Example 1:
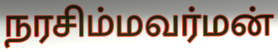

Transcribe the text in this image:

நரசிம்மவர்மன்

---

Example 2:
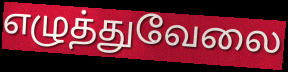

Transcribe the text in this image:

எழுத்துவேலை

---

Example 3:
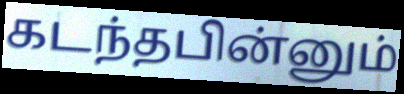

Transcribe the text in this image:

கடந்தபின்னும்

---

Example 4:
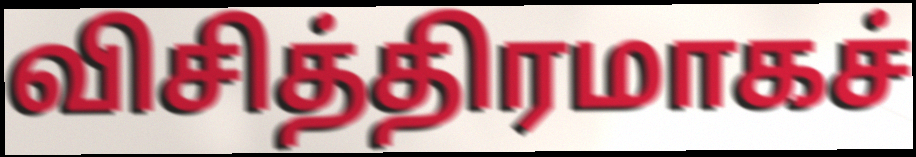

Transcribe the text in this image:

விசித்திரமாகச்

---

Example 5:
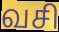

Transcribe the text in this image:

வசி